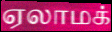
ஏலாமக்